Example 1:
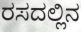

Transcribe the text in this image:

ರಸದಲ್ಲಿನ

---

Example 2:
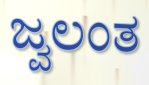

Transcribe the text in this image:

ಜ್ವಲಂತ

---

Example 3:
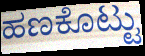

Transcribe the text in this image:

ಹಣಕೊಟ್ಟು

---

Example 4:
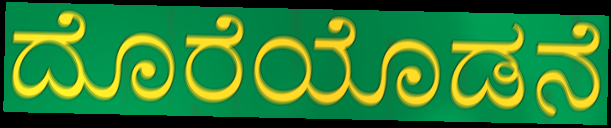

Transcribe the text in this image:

ದೊರೆಯೊಡನೆ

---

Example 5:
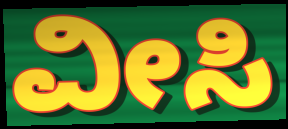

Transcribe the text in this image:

ವೀಸಿ